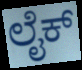
ಲೈಕ್